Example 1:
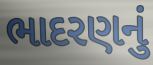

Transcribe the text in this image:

ભાદરણનું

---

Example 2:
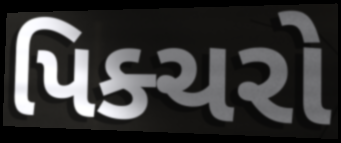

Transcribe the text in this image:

પિક્ચરો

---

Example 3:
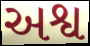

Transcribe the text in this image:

અશ્વ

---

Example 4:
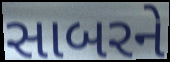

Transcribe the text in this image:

સાબરને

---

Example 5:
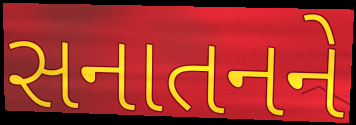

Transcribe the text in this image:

સનાતનને